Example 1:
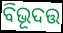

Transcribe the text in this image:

ବିଭୂଦତ୍ତ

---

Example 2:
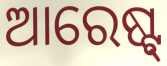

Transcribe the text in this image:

ଆରେଷ୍ଟ୍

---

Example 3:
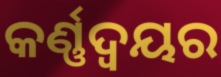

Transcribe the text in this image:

କର୍ଣ୍ଣଦ୍ୱୟର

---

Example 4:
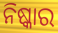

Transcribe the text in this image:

ନିଷ୍କାର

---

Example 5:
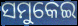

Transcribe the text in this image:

ସମୁକେଇ